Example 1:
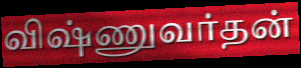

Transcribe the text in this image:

விஷ்ணுவர்தன்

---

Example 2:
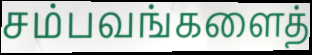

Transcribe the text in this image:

சம்பவங்களைத்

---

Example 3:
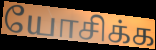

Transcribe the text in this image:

யோசிக்க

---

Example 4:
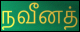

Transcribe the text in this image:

நவீனத்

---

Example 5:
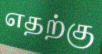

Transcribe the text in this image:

எதற்கு